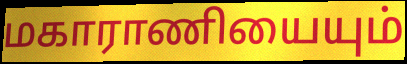
மகாராணியையும்